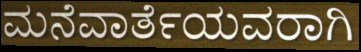
ಮನೆವಾರ್ತೆಯವರಾಗಿ